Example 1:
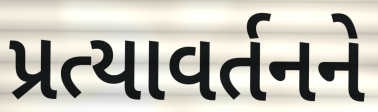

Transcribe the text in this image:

પ્રત્યાવર્તનને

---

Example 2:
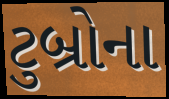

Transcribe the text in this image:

ટુબ્રોના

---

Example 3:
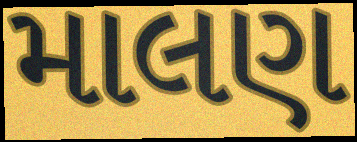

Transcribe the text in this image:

માલણ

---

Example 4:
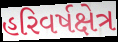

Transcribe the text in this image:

હરિવર્ષક્ષેત્ર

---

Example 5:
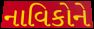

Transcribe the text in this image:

નાવિકોને